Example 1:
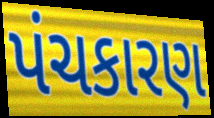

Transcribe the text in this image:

પંચકારણ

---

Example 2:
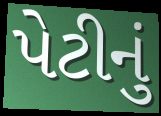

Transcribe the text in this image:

પેટીનું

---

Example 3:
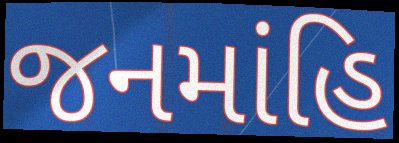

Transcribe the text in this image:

જનમાંહિ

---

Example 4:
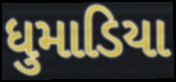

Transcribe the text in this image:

ધુમાડિયા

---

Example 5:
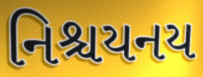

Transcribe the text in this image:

નિશ્ચયનય